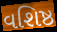
વશિષ્ઠ